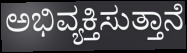
ಅಭಿವ್ಯಕ್ತಿಸುತ್ತಾನೆ